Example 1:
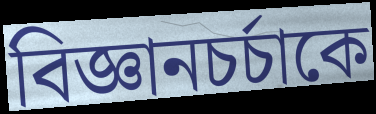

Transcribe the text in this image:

বিজ্ঞানচর্চাকে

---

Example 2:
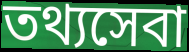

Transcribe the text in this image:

তথ্যসেবা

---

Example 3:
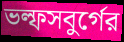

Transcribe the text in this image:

ভল্ফসবুর্গের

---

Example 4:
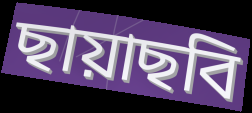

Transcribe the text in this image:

ছায়াছবি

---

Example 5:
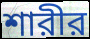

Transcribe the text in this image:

শারীর